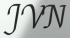
JVN